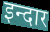
इन्दार